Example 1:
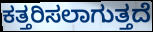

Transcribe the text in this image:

ಕತ್ತರಿಸಲಾಗುತ್ತದೆ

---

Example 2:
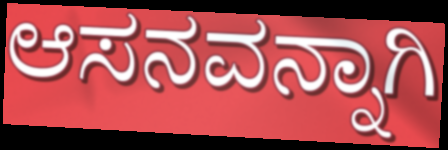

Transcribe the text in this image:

ಆಸನವನ್ನಾಗಿ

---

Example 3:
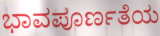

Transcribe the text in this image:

ಭಾವಪೂರ್ಣತೆಯ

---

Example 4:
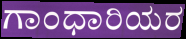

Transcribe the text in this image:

ಗಾಂಧಾರಿಯರ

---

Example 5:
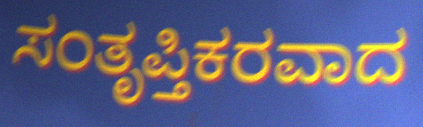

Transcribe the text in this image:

ಸಂತೃಪ್ತಿಕರವಾದ